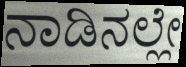
ನಾಡಿನಲ್ಲೇ